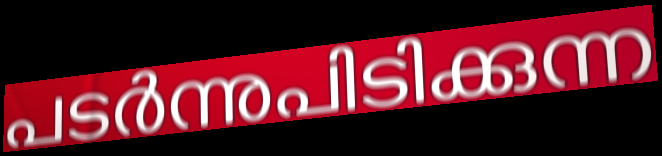
പടർന്നുപിടിക്കുന്ന